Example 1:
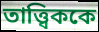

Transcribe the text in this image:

তাত্ত্বিককে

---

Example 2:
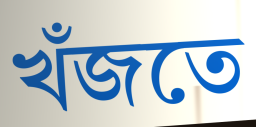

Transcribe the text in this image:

খঁজতে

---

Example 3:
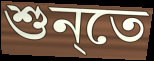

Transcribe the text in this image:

শুন্‌তে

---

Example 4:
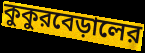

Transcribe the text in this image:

কুকুরবেড়ালের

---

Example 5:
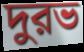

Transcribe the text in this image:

দুরভ